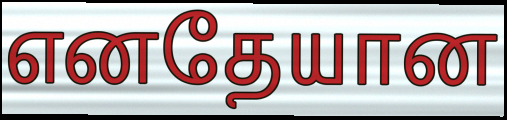
எனதேயான